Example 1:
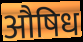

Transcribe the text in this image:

औषिध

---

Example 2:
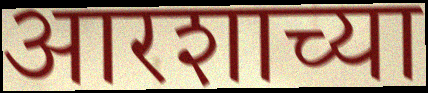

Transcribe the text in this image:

आरशाच्या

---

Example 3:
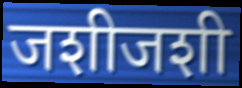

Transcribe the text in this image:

जशीजशी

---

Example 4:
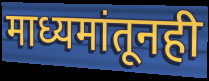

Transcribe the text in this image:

माध्यमांतूनही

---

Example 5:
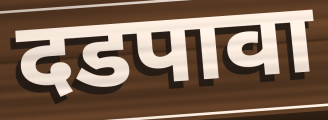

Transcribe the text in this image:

दडपावा